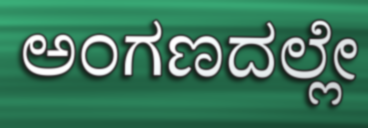
ಅಂಗಣದಲ್ಲೇ